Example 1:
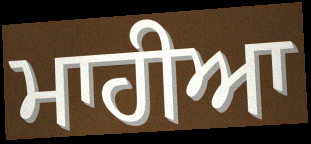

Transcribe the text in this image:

ਮਾਹੀਆ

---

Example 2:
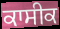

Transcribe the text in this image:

ਕਾਸੀਕ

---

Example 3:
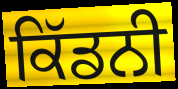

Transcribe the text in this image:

ਕਿੱਡਨੀ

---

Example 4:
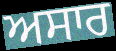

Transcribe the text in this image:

ਅਸਾਰ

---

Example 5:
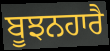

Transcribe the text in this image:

ਬੂਝਨਹਾਰੈ